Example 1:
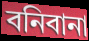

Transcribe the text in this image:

বনিবানা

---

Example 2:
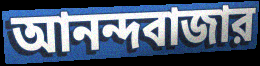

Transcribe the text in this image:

আনন্দবাজার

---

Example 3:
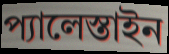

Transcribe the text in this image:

প্যালেস্তাইন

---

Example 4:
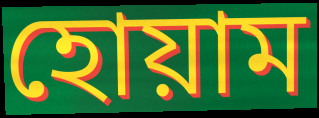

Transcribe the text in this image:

হোয়াম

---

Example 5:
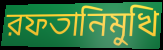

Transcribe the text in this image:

রফতানিমুখি